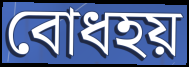
বোধহয়